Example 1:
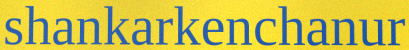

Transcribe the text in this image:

shankarkenchanur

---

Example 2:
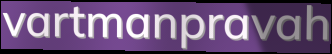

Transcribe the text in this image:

vartmanpravah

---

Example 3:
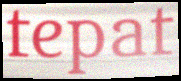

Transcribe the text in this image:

tepat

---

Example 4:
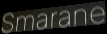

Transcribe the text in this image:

Smarane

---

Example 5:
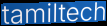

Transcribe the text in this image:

tamiltech